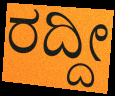
ರದ್ದೀ